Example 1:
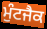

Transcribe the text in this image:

ਮੁੰਟਜੈਕ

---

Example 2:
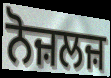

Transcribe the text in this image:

ਨੋਜ਼ਲਜ਼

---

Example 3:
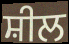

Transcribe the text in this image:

ਸ਼ੀਲ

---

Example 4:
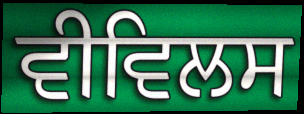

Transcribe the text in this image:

ਵੀਵਿਲਸ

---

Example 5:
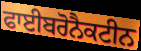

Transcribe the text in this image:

ਫਾਈਬਰੋਨੈਕਟੀਨ